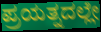
ಪ್ರಯತ್ನದಲ್ಲೇ